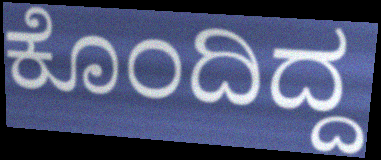
ಕೊಂದಿದ್ದ